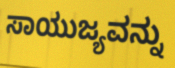
ಸಾಯುಜ್ಯವನ್ನು